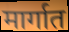
मार्गात